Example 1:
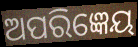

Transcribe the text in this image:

ଅପରିଜ୍ଞେୟ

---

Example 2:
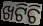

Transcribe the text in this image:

ଖଟିଚି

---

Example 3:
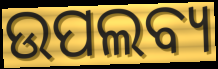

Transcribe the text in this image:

ଉପଲବ୍ୟ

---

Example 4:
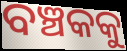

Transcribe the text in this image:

ବଞ୍ଚକକୁ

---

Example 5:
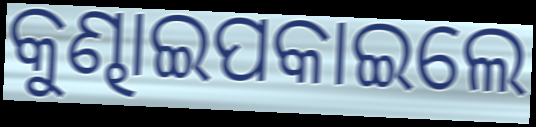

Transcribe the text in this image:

କୁଣ୍ଢାଇପକାଇଲେ